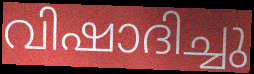
വിഷാദിച്ചു